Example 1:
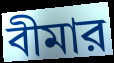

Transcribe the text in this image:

বীমার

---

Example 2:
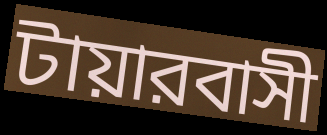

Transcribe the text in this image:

টায়ারবাসী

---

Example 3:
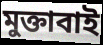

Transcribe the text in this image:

মুক্তাবাই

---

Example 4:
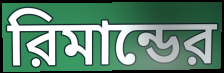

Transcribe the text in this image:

রিমান্ডের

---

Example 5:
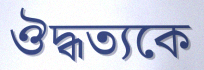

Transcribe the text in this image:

ঔদ্ধত্যকে